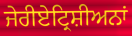
ਜੇਰੀਏਟ੍ਰਿਸ਼ੀਅਨਾਂ